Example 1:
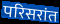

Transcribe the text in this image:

परिसरांत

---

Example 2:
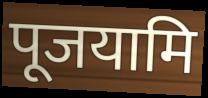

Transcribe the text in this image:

पूजयामि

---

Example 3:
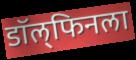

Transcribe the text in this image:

डॉल्फिनला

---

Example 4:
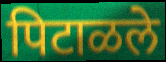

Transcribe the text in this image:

पिटाळले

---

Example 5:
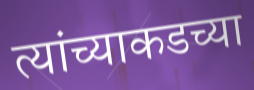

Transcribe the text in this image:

त्यांच्याकडच्या